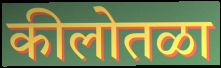
कीलोतळा